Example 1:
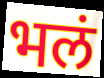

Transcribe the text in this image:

भलं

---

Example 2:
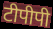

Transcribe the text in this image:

टीपीपी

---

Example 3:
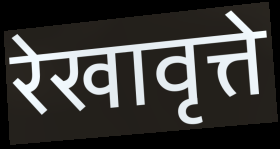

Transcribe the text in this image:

रेखावृत्ते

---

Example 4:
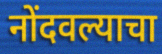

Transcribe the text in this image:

नोंदवल्याचा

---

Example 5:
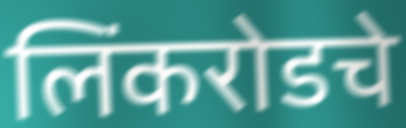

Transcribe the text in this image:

लिंकरोडचे